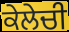
ਕੇਲੇਚੀ